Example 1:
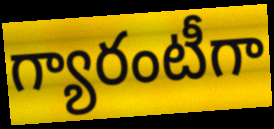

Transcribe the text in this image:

గ్యారంటీగా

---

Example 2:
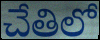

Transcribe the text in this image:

చేతిలో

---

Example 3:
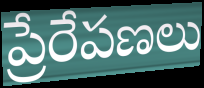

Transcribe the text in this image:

ప్రేరేపణలు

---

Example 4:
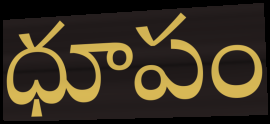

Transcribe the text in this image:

ధూపం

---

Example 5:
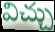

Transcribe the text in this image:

విచ్చు